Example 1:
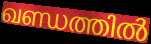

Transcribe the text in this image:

ഖണ്ഡത്തിൽ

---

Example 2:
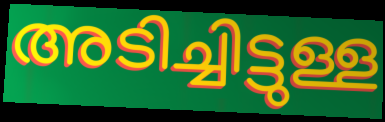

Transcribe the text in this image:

അടിച്ചിട്ടുള്ള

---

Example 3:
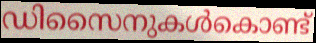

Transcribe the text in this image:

ഡിസൈനുകൾകൊണ്ട്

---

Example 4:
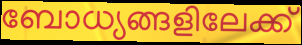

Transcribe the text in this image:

ബോധ്യങ്ങളിലേക്ക്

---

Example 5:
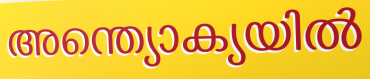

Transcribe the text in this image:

അന്ത്യൊക്യയിൽ